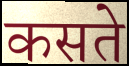
कसते